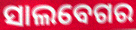
ସାଲବେଗର